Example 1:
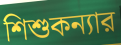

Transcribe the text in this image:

শিশুকন্যার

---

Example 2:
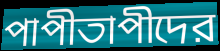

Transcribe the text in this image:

পাপীতাপীদের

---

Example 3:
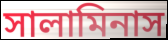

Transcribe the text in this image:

সালামিনাস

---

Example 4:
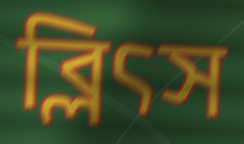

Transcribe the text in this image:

ব্লিৎস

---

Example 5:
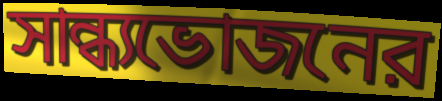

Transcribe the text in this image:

সান্ধ্যভোজনের